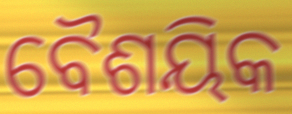
ବୈଶୟିକ